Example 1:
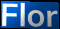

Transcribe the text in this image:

Flor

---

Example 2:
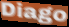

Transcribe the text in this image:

Diago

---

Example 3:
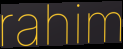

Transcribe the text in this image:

rahim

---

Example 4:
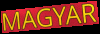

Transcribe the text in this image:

MAGYAR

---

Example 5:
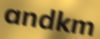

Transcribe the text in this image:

andkm